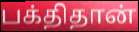
பக்திதான்